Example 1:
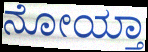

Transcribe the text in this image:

ನೋಯ್ತಾ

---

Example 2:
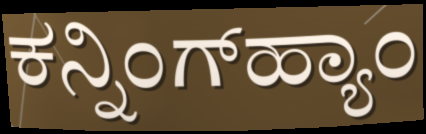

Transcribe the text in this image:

ಕನ್ನಿಂಗ್‌ಹ್ಯಾಂ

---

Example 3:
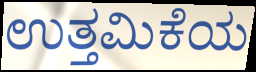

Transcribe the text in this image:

ಉತ್ತಮಿಕೆಯ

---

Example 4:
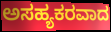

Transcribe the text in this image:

ಅಸಹ್ಯಕರವಾದ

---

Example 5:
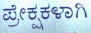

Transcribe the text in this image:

ಪ್ರೇಕ್ಷಕಳಾಗಿ